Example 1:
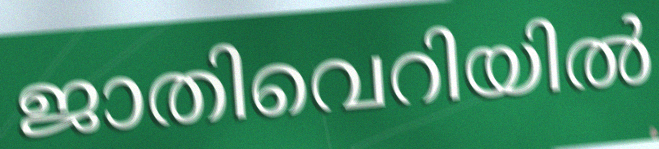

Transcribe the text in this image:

ജാതിവെറിയിൽ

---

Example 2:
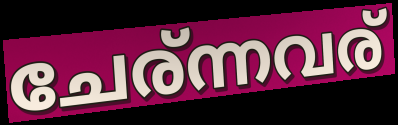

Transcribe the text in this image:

ചേര്ന്നവര്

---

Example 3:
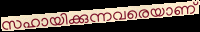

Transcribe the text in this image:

സഹായിക്കുന്നവരെയാണ്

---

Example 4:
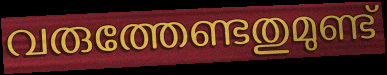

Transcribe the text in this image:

വരുത്തേണ്ടതുമുണ്ട്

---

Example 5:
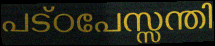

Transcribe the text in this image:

പട്ഠപേസ്സന്തി